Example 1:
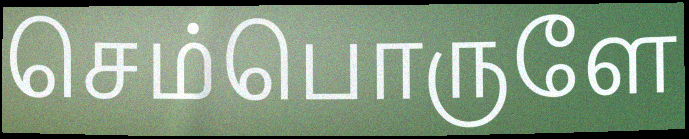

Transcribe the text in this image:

செம்பொருளே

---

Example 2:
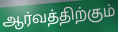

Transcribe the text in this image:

ஆர்வத்திற்கும்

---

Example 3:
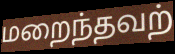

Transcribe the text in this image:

மறைந்தவற்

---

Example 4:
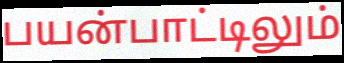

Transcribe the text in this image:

பயன்பாட்டிலும்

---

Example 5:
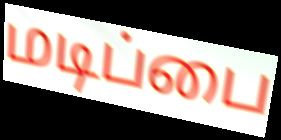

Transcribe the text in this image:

மடிப்பை